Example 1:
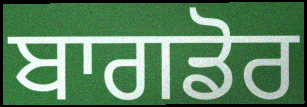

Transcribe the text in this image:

ਬਾਗਡੋਰ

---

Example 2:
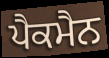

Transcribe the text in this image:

ਪੈਕਮੈਨ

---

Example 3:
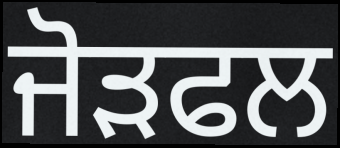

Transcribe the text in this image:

ਜੋੜਫਲ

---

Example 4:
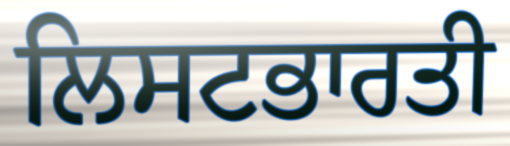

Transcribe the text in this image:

ਲਿਸਟਭਾਰਤੀ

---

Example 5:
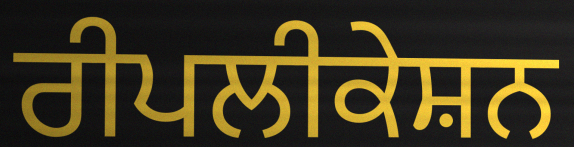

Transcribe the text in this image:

ਰੀਪਲੀਕੇਸ਼ਨ